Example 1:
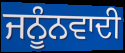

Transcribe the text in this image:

ਜਨੂੰਨਵਾਦੀ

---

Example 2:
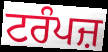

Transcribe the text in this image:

ਟਰੰਪਜ਼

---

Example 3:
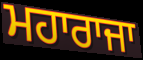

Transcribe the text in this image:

ਮਹਾਰਾਜਾ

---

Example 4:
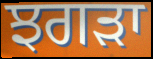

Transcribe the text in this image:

ਝਗੜਾ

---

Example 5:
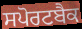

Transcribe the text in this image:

ਸਪੋਰਟਬੈਕ